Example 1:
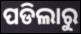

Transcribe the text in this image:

ପଡିଲାରୁ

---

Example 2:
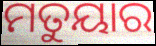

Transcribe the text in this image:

ମତୁୟାର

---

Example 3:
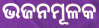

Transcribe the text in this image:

ଭଜନମୂଳକ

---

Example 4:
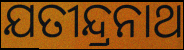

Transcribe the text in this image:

ଯତୀନ୍ଦ୍ରନାଥ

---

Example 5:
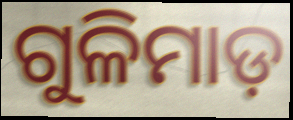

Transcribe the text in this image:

ଗୁଳିମାଡ଼